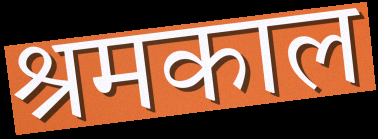
श्रमकाल